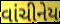
વાંચીનેય